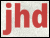
jhd